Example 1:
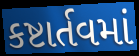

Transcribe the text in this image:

કષ્ટાર્તવમાં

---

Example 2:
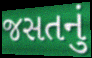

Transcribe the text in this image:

જસતનું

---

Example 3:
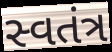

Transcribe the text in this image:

સ્વતંત્ર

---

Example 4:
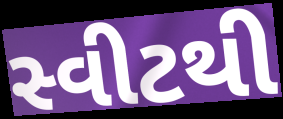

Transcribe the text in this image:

સ્વીટથી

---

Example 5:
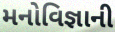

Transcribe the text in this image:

મનોવિજ્ઞાની